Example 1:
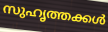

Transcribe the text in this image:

സുഹൃത്തക്കൾ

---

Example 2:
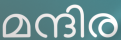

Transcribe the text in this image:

മന്ദിര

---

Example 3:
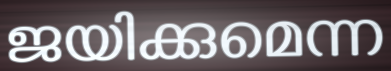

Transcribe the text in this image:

ജയിക്കുമെന്ന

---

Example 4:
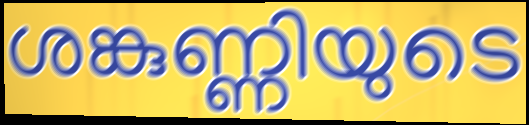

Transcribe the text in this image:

ശങ്കുണ്ണിയുടെ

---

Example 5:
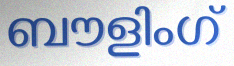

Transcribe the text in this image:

ബൗളിംഗ്